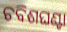
ଚବିଶଘଣ୍ଟା